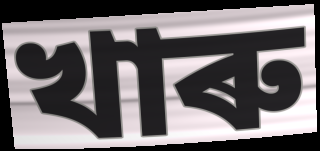
খাৰু